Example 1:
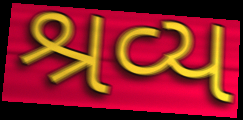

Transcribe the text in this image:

શ્રવ્ય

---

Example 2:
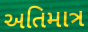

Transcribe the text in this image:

અતિમાત્ર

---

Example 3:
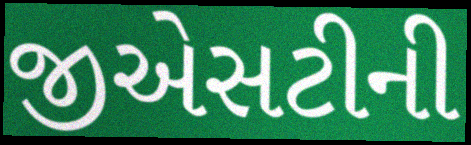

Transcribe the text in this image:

જીએસટીની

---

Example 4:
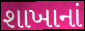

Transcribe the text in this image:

શાખાનાં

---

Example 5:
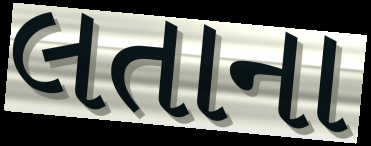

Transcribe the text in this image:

લતાના